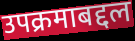
उपक्रमाबद्दल